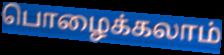
பொழைக்கலாம்